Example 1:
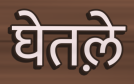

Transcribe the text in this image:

घेतल़े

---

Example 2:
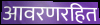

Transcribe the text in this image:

आवरणरहित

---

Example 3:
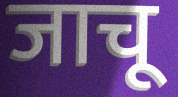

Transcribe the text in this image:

जाचू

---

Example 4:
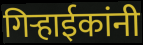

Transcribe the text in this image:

गिऱ्हाईकांनी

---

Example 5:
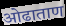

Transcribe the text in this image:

ओढाताण